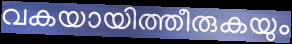
വകയായിത്തീരുകയും